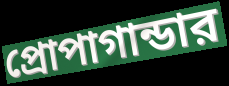
প্রোপাগান্ডার